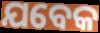
ଯବେକ